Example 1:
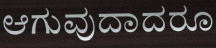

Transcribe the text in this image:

ಆಗುವುದಾದರೂ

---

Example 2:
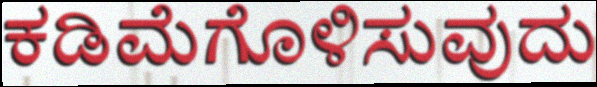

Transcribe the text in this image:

ಕಡಿಮೆಗೊಳಿಸುವುದು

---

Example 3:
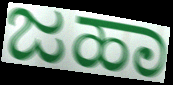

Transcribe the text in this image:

ಜಹಾ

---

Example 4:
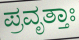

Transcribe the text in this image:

ಪ್ರವೃತ್ತಾಃ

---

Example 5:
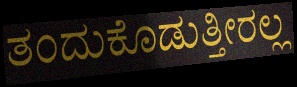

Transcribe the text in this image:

ತಂದುಕೊಡುತ್ತೀರಲ್ಲ